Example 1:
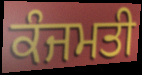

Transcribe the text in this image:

ਕੰਜਮਤੀ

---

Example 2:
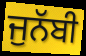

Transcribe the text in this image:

ਜੁਨੱਬੀ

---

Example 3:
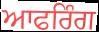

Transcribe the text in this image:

ਆਫਰਿੰਗ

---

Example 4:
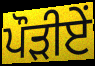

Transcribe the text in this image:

ਪੌੜੀਏਂ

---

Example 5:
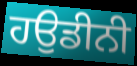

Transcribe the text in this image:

ਹਉਡੀਨੀ